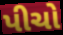
પીચો